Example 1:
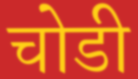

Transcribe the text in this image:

चोडी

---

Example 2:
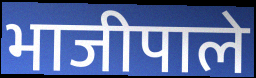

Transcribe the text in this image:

भाजीपाले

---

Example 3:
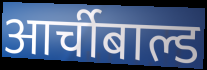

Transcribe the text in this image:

आर्चीबाल्ड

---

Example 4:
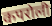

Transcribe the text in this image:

कपरोली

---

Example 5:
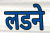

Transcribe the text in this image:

लडने